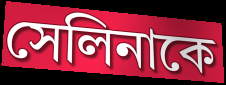
সেলিনাকে